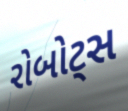
રોબોટ્સ